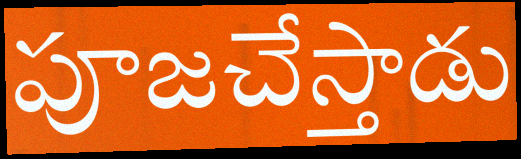
పూజచేస్తాడు